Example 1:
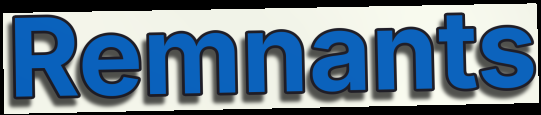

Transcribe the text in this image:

Remnants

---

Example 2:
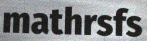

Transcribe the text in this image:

mathrsfs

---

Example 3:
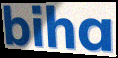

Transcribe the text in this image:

biha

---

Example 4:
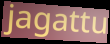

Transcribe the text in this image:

jagattu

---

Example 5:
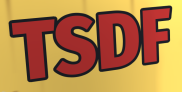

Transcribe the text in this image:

TSDF